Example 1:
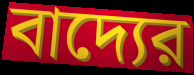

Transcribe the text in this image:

বাদ্যের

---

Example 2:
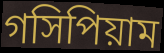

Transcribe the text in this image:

গসিপিয়াম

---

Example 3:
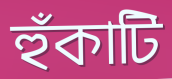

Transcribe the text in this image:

হুঁকাটি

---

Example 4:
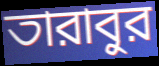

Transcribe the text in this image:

তারাবুর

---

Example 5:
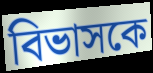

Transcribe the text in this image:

বিভাসকে